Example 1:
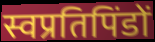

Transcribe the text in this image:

स्वप्रतिपिंडों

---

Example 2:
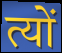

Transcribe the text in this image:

त्यों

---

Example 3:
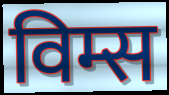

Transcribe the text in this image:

विम्स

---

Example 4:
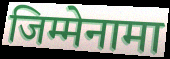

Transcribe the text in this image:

जिम्मेनामा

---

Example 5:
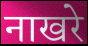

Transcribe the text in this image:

नाखरे